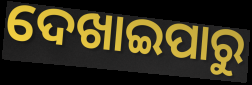
ଦେଖାଇପାରୁ